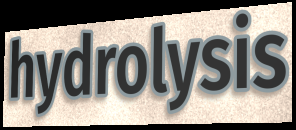
hydrolysis